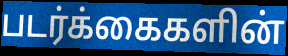
படர்க்கைகளின்